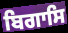
ਬਿਗਾਸਿ